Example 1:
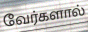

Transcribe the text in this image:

வேர்களால்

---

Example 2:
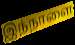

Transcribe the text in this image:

இந்நாளை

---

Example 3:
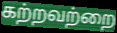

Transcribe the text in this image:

கற்றவற்றை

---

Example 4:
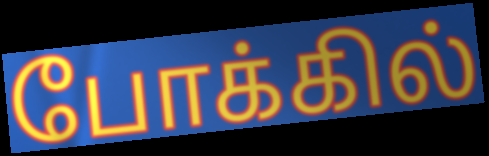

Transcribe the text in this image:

போக்கில்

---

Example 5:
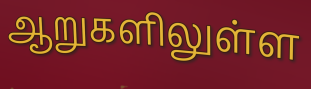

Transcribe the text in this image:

ஆறுகளிலுள்ள